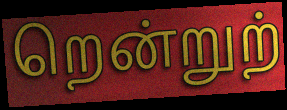
றென்றுற்